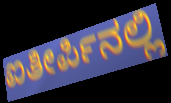
ಐತೀರ್ಪಿನಲ್ಲಿ